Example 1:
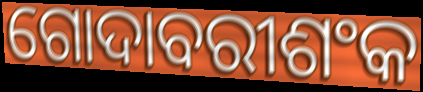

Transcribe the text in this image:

ଗୋଦାବରୀଶଂକ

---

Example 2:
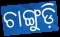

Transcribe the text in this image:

ଚାଙ୍ଗୁଡ଼ି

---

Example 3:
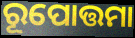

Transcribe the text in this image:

ରୂପୋତ୍ତମା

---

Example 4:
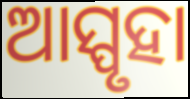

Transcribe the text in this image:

ଆସ୍ପୃହା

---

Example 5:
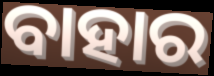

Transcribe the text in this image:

ବାହାର